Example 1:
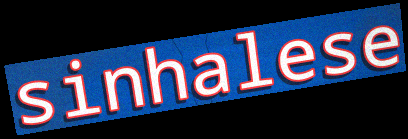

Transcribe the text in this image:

sinhalese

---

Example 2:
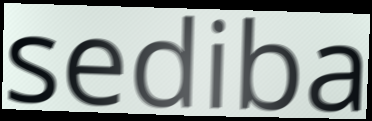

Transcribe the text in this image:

sediba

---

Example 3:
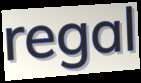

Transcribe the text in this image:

regal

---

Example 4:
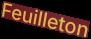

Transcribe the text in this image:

Feuilleton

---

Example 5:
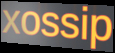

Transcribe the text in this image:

xossip